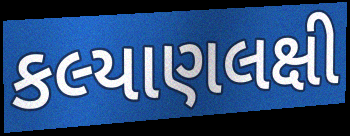
કલ્યાણલક્ષી